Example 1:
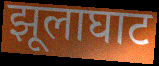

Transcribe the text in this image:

झूलाघाट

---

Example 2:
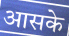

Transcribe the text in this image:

आसके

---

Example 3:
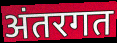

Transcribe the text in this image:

अंतरगत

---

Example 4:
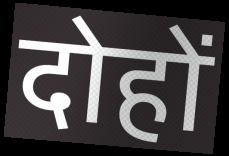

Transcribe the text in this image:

दोहों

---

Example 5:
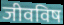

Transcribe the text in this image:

जीवविष